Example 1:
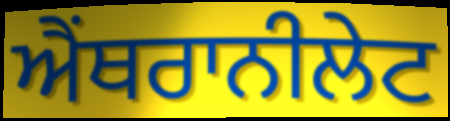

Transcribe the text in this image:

ਐਂਥਰਾਨੀਲੇਟ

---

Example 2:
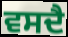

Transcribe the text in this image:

ਵਸਦੈ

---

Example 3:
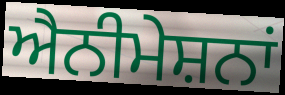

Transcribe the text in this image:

ਐਨੀਮੇਸ਼ਨਾਂ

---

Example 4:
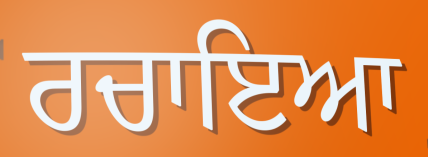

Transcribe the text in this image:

ਰਚਾਇਆ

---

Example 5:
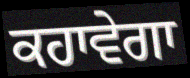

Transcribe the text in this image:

ਕਹਾਵੇਗਾ